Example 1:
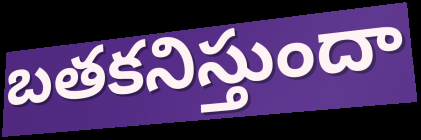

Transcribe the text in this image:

బతకనిస్తుందా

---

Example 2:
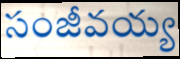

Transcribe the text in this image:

సంజీవయ్య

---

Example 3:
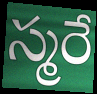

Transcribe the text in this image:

స్మరే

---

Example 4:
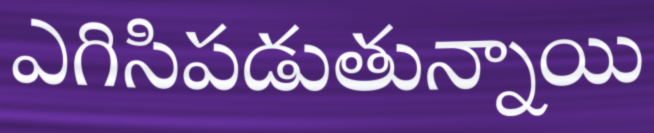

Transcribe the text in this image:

ఎగిసిపడుతున్నాయి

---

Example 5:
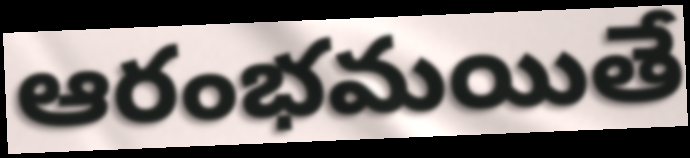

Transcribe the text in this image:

ఆరంభమయితే